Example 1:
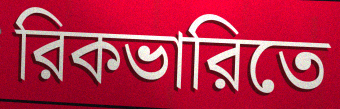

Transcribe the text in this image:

রিকভারিতে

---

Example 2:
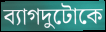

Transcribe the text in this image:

ব্যাগদুটোকে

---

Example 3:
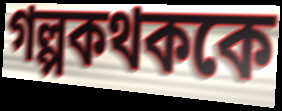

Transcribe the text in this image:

গল্পকথককে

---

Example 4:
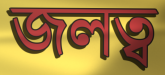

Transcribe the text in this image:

জলত্ব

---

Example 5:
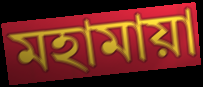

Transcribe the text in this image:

মহামায়া